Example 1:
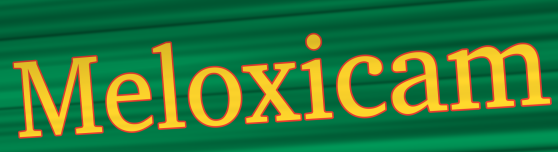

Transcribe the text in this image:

Meloxicam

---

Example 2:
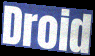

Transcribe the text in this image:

Droid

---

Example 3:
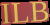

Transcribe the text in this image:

ILB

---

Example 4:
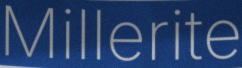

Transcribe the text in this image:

Millerite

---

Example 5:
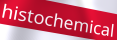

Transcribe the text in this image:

histochemical